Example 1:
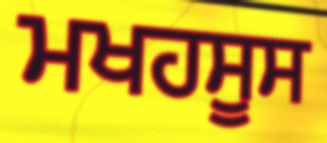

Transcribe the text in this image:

ਮਖਹਸੂਸ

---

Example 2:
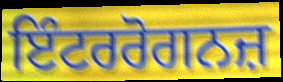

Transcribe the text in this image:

ਇੰਟਰਰੋਗਨਜ਼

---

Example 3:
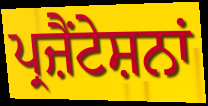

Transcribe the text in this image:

ਪ੍ਰਜ਼ੈਂਟੇਸ਼ਨਾਂ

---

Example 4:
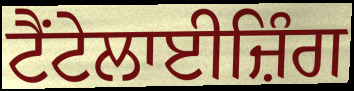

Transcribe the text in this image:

ਟੈਂਟੇਲਾਈਜ਼ਿੰਗ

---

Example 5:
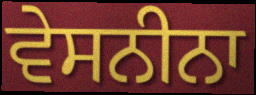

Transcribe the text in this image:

ਵੇਸਨੀਨਾ